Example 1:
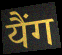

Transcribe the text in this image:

यैंग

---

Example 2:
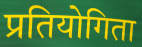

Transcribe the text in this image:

प्रतियोगिता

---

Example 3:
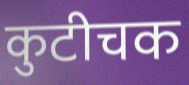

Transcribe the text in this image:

कुटीचक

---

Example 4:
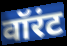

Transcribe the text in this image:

वॉरंट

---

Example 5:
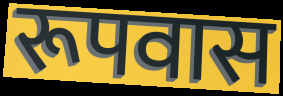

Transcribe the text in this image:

रूपवास